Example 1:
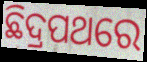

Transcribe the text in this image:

ଛିଦ୍ରପଥରେ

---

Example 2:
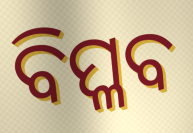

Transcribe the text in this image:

ବିପ୍ଳବ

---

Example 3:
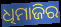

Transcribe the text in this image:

ଧିମାଜିର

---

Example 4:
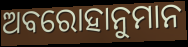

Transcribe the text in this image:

ଅବରୋହାନୁମାନ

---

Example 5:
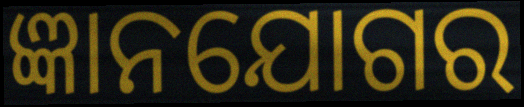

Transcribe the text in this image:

ଜ୍ଞାନଯୋଗର